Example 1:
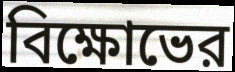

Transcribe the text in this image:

বিক্ষোভের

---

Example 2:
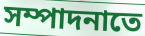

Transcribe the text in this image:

সম্পাদনাতে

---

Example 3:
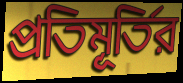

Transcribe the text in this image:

প্রতিমূর্তির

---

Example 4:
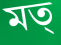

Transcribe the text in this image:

মত্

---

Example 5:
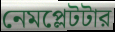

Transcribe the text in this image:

নেমপ্লেটটার